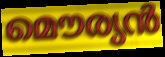
മൌര്യൻ